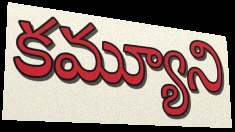
కమ్యూని